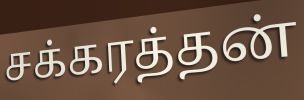
சக்கரத்தன்